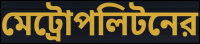
মেট্রোপলিটনের